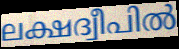
ലക്ഷദ്വീപിൽ